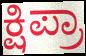
ಕ್ಷಿಪ್ರಾ